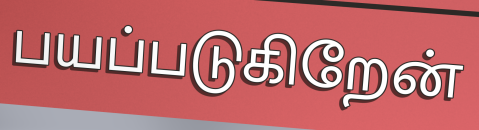
பயப்படுகிறேன்